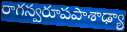
రాగస్వరూపపాశాఢ్యా